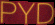
PYD